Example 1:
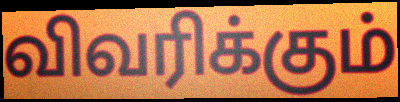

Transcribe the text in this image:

விவரிக்கும்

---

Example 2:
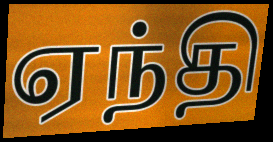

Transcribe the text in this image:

ஏந்தி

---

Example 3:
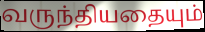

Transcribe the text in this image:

வருந்தியதையும்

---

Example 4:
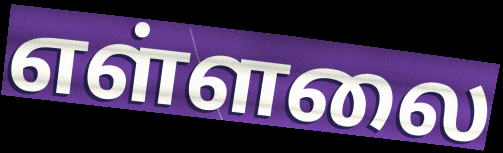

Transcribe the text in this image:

எள்ளலை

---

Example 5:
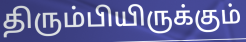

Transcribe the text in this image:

திரும்பியிருக்கும்